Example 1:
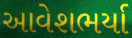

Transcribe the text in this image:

આવેશભર્યા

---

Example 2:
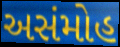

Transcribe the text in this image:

અસંમોહ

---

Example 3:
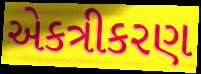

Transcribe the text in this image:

એકત્રીકરણ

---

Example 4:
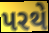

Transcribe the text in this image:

પરથે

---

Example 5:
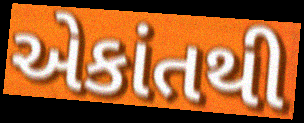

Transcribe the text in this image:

એકાંતથી